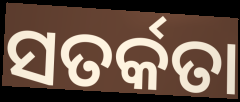
ସତର୍କତା